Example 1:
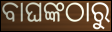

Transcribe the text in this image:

ବାଘଙ୍କଠାରୁ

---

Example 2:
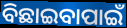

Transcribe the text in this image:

ବିଛାଇବାପାଇଁ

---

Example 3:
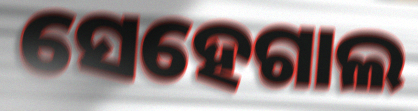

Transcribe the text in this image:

ସେହେଗାଲ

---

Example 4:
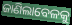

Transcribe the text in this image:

ଜାଣିଲାବେଳକୁ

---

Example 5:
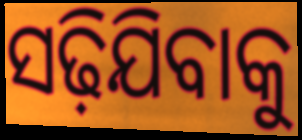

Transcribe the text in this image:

ସଢ଼ିଯିବାକୁ